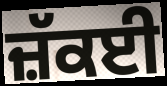
ਜ਼ੱਕਈ